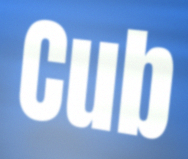
Cub